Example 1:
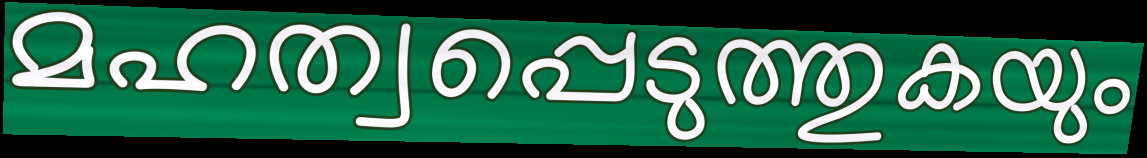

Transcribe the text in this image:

മഹത്വപ്പെടുത്തുകയും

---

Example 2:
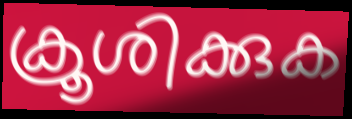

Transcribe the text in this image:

ക്രൂശിക്കുക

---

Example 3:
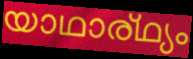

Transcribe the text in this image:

യാഥാര്ഥ്യം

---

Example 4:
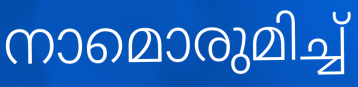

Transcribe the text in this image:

നാമൊരുമിച്ച്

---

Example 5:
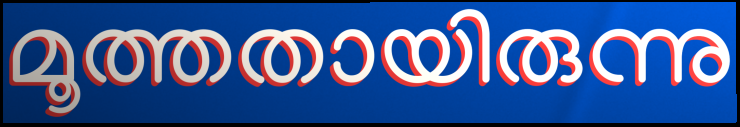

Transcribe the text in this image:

മൂത്തതായിരുന്നു